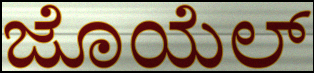
ಜೊಯೆಲ್